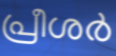
പ്രീശർ